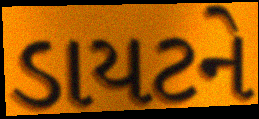
ડાયટને